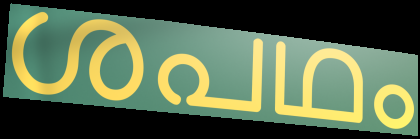
ശപഥം